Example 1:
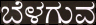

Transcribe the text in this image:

ಬೆಳಗುವ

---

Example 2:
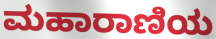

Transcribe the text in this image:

ಮಹಾರಾಣಿಯ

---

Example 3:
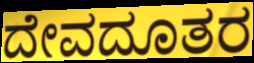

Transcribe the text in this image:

ದೇವದೂತರ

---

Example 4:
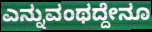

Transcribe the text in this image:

ಎನ್ನುವಂಥದ್ದೇನೂ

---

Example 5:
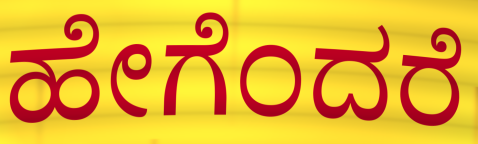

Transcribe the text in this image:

ಹೇಗೆಂದರೆ